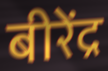
बीरेंद्र